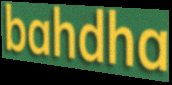
bahdha